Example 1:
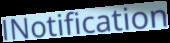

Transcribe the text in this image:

INotification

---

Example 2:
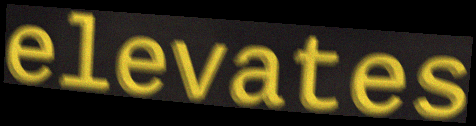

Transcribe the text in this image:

elevates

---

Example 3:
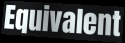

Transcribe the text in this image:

Equivalent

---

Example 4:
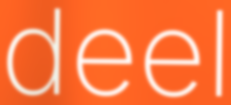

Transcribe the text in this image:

deel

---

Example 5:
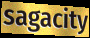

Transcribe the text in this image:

sagacity